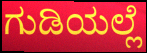
ಗುಡಿಯಲ್ಲೆ